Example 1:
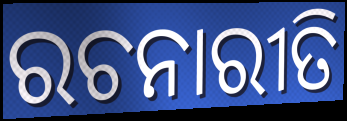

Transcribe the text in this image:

ରଚନାରୀତି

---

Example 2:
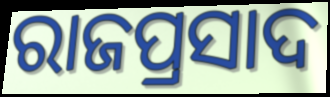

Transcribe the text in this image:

ରାଜପ୍ରସାଦ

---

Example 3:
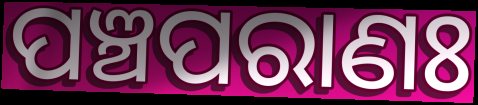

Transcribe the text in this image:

ପଞ୍ଚପରାଣଃ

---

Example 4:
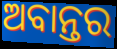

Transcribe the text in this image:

ଅବାନ୍ତର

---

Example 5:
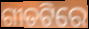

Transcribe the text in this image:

ଗୀତଟିରେ